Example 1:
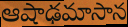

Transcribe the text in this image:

ఆషాఢమాసాన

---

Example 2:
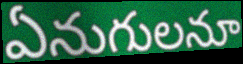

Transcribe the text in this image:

ఏనుగులనూ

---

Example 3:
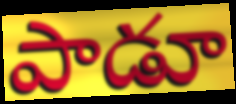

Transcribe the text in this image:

పాడూ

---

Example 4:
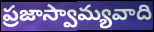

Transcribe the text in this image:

ప్రజాస్వామ్యవాది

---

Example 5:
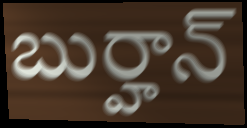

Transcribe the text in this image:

బుర్హాన్